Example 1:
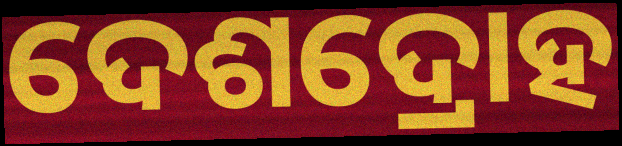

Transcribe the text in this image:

ଦେଶଦ୍ରୋହ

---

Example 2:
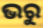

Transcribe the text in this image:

ଭରୁ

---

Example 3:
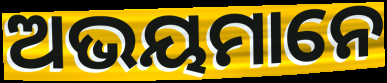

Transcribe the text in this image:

ଅଭୟମାନେ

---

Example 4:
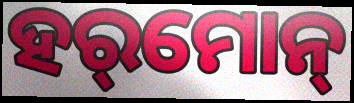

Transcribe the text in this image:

ହର୍‌ମୋନ୍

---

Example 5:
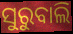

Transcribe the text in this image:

ସୁରୁବାଲି